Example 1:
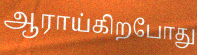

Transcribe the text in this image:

ஆராய்கிறபோது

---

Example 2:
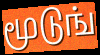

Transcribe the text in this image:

மூடுங்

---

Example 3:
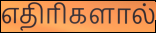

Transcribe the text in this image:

எதிரிகளால்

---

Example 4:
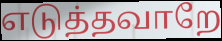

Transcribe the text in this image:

எடுத்தவாறே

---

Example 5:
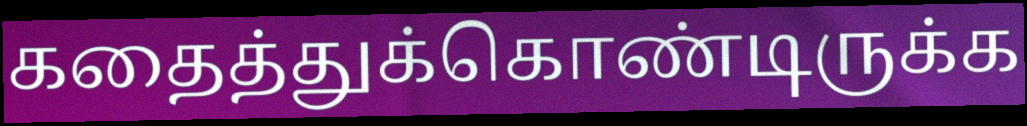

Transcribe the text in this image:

கதைத்துக்கொண்டிருக்க